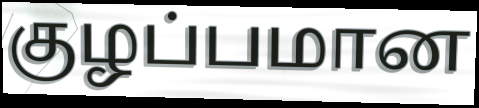
குழப்பமான